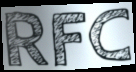
RFC